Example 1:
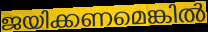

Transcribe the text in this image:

ജയിക്കണമെങ്കിൽ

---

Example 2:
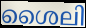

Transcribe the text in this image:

ശൈലി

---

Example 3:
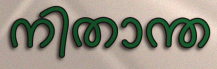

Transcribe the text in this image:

നിതാന്ത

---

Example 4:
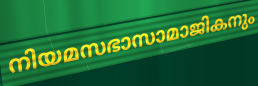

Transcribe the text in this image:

നിയമസഭാസാമാജികനും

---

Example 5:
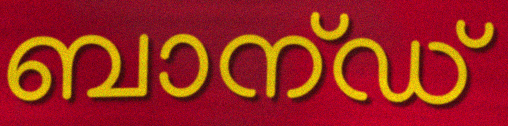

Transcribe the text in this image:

ബാന്ഡ്